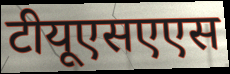
टीयूएसएएस